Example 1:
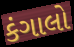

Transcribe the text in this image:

કંગાલો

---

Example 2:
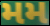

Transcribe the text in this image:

મમ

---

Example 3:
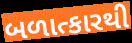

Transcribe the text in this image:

બળાત્કારથી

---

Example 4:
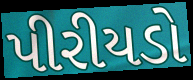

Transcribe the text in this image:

પીરીયડો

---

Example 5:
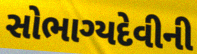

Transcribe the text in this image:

સોભાગ્યદેવીની